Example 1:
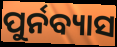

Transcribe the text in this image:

ପୁର୍ନବ୍ୟାସ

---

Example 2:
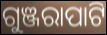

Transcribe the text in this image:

ଗୁଞ୍ଜରାପାଟି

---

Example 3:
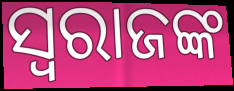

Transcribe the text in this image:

ସ୍ୱରାଜଙ୍କ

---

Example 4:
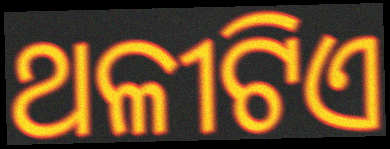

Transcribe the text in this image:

ଥଳୀଟିଏ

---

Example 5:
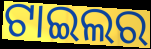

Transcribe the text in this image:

ଟାଇଲର